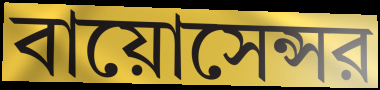
বায়োসেন্সর